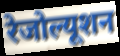
रेजोल्यूशन